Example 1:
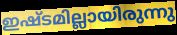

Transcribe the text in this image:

ഇഷ്ടമില്ലായിരുന്നു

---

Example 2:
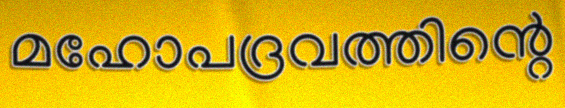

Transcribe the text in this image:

മഹോപദ്രവത്തിന്റെ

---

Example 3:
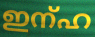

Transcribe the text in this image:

ഇന്ഹ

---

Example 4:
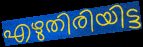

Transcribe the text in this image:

എഴുതിരിയിട്ട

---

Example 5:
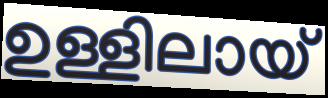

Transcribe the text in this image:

ഉള്ളിലായ്